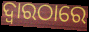
ଦ୍ୱାରଠାରେ